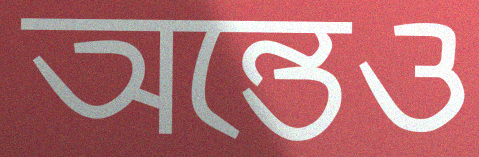
অন্তেও